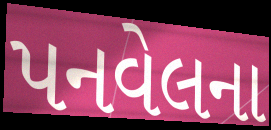
પનવેલના